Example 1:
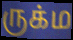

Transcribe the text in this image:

ருக்ம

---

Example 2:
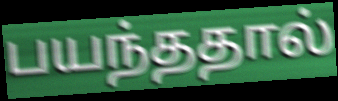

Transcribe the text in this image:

பயந்ததால்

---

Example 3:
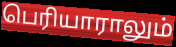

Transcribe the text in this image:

பெரியாராலும்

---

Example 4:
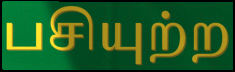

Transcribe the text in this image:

பசியுற்ற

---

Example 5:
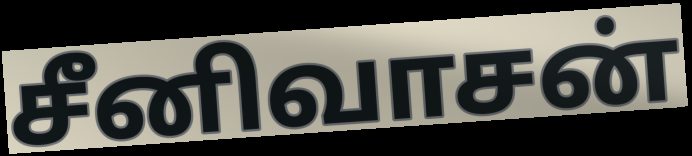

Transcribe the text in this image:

சீனிவாசன்